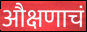
औक्षणाचं